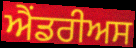
ਐਂਡਰੀਅਸ